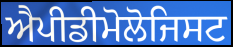
ਐਪੀਡੀਮੋਲੋਜਿਸਟ